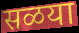
सळया